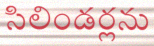
సిలిండర్లను